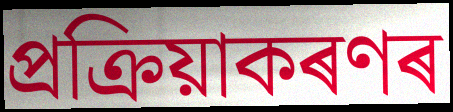
প্ৰক্ৰিয়াকৰণৰ